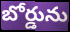
బోర్డును